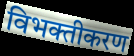
विभक्तीकरण